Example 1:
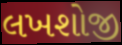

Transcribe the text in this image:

લખશોજી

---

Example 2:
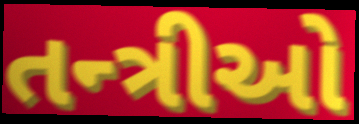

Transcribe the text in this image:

તન્ત્રીઓ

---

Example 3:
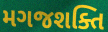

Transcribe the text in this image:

મગજશક્તિ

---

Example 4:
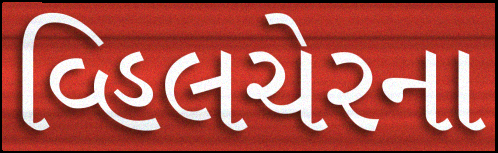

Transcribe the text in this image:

વ્હિલચેરના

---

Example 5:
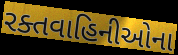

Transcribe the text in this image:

રક્તવાહિનીઓના